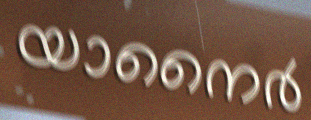
യാനൈർ